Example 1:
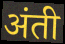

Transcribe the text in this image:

अंती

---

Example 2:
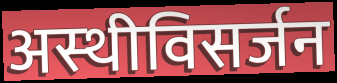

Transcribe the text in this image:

अस्थीविसर्जन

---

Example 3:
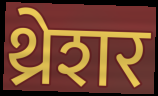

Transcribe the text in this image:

थ्रेशर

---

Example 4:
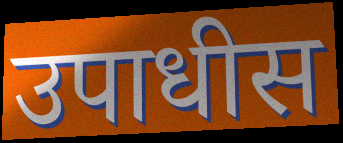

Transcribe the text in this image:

उपाधीस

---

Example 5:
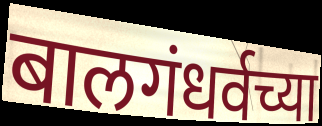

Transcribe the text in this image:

बालगंधर्वच्या